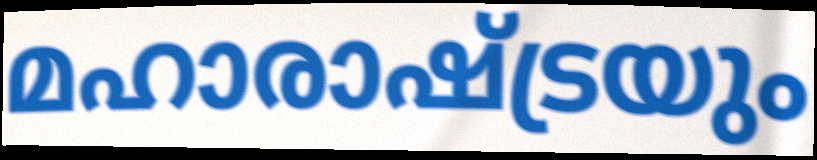
മഹാരാഷ്ട്രയും